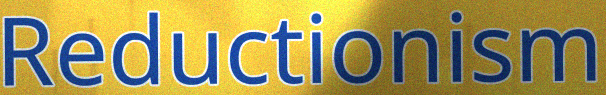
Reductionism